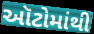
ઑટોમાંથી